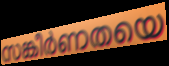
സങ്കീർണതയെ